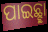
ପାଇଛ୍ଛା